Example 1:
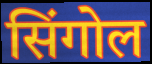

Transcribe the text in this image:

सिंगोल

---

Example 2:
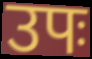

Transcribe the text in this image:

उपः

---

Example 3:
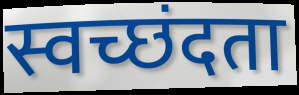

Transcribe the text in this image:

स्वच्छंदता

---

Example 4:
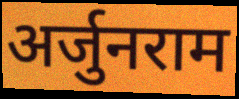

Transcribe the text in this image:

अर्जुनराम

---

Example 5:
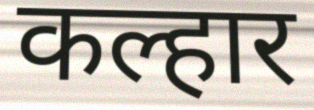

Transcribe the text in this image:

कल्हार